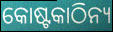
କୋଷ୍ଟକାଠିନ୍ୟ